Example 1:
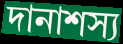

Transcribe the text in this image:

দানাশস্য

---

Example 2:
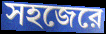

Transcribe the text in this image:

সহজেরে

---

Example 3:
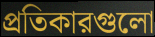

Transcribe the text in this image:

প্রতিকারগুলো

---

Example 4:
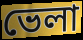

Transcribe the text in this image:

ভেলা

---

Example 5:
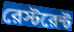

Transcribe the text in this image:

রেস্টরেন্ট